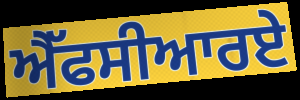
ਐੱਫਸੀਆਰਏ